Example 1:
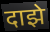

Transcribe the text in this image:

दाझे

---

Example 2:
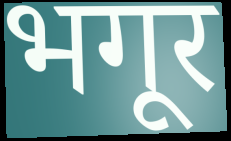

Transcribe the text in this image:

भगूर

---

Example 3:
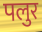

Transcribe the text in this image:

पलुर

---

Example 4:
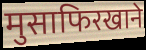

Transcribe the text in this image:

मुसाफिरखाने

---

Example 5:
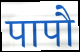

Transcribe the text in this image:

पापौ